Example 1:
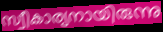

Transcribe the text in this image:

സ്വീകാര്യനായിരുന്നു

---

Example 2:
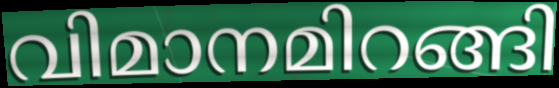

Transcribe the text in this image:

വിമാനമിറങ്ങി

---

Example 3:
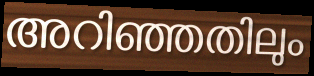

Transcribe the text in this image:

അറിഞ്ഞതിലും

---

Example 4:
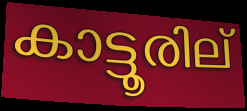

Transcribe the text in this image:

കാട്ടൂരില്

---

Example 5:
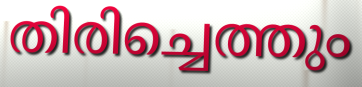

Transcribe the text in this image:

തിരിച്ചെത്തും